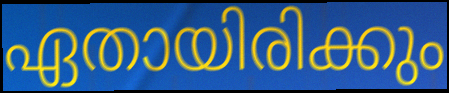
ഏതായിരിക്കും